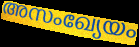
അസംഖ്യേയം